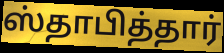
ஸ்தாபித்தார்